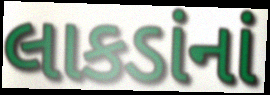
લાકડાંનાં